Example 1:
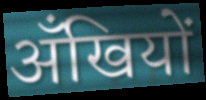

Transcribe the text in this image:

अँखियों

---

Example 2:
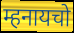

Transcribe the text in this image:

म्हनायचो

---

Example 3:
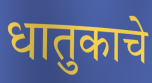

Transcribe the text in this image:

धातुकाचे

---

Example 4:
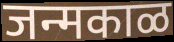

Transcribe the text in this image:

जन्मकाळ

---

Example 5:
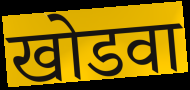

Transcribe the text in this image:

खोडवा